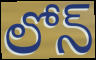
లోన్